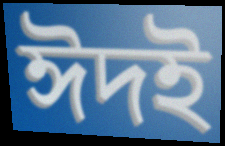
ঈদই